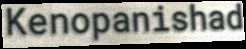
Kenopanishad